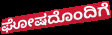
ಘೋಷದೊಂದಿಗೆ